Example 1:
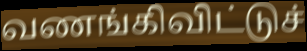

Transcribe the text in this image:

வணங்கிவிட்டுச்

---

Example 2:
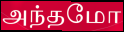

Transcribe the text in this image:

அந்தமோ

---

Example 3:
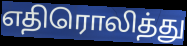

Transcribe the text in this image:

எதிரொலித்து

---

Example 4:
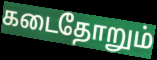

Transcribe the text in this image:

கடைதோறும்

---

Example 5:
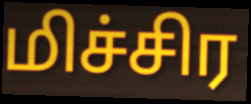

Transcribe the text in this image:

மிச்சிர